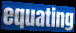
equating